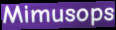
Mimusops